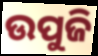
ଉପୁଜି